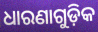
ଧାରଣାଗୁଡ଼ିକ